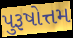
પુરૂષોત્તમ